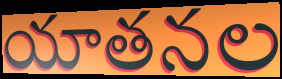
యాతనల